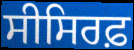
ਸੀਸਿਰਫ਼